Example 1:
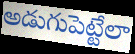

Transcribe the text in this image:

అడుగుపెట్టేలా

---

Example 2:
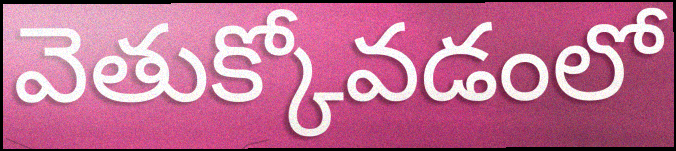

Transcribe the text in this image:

వెతుక్కోవడంలో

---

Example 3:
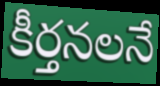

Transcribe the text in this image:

కీర్తనలనే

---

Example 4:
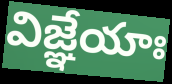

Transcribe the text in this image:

విజ్ఞేయాః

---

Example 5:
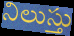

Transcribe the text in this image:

నిలుస్తు